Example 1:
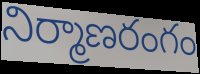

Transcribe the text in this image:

నిర్మాణరంగం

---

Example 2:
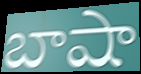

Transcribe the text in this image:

బాషా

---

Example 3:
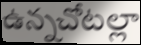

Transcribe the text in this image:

ఉన్నచోటల్లా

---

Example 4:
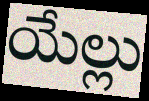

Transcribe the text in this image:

యేల్లు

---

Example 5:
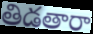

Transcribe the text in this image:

తిడతారా